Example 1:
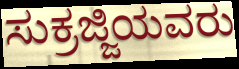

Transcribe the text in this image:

ಸುಕ್ರಜ್ಜಿಯವರು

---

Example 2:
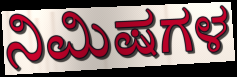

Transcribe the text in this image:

ನಿಮಿಷಗಳ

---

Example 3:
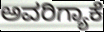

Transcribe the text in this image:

ಅವರಿಗ್ಯಾಕೆ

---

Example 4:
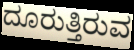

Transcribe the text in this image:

ದೂರುತ್ತಿರುವ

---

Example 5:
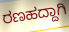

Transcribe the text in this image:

ರಣಹದ್ದಾಗಿ